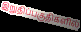
இறுதிப்பகுதிகளில்